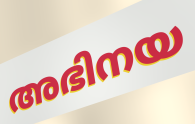
അഭിനയ